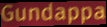
Gundappa